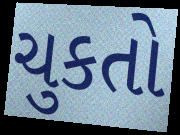
ચુકતો